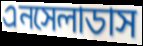
এনসেলাডাস